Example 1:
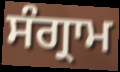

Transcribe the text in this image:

ਸੰਗ੍ਰਾਮ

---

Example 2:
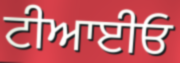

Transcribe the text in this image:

ਟੀਆਈਓ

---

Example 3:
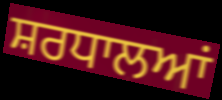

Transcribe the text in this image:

ਸ਼ਰਧਾਲਆਂ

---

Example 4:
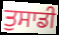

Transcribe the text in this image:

ਤੁਸਾਡੀ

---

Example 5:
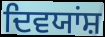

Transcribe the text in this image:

ਦਿਵਯਾਂਸ਼